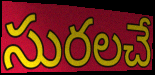
సురలచే